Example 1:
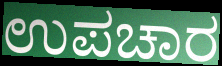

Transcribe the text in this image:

ಉಪಚಾರ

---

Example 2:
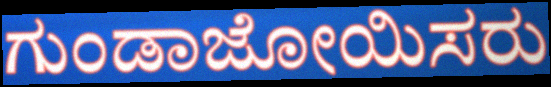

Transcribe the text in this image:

ಗುಂಡಾಜೋಯಿಸರು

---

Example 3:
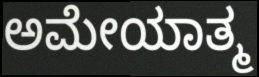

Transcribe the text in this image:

ಅಮೇಯಾತ್ಮ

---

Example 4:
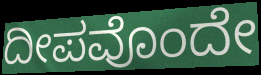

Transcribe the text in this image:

ದೀಪವೊಂದೇ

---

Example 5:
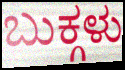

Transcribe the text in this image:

ಬುಕ್ಗಳು